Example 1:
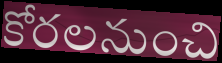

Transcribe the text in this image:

కోరలనుంచి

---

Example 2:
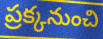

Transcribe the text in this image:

ప్రక్కనుంచి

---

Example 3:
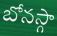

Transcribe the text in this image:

బోనస్గా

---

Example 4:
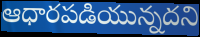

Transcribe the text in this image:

ఆధారపడియున్నదని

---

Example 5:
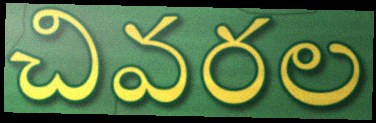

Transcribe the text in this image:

చివరల